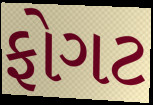
ફોગટ